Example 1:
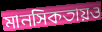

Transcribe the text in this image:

মানসিকতায়ও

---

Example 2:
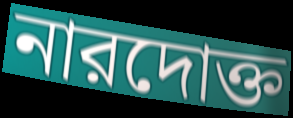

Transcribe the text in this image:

নারদোক্ত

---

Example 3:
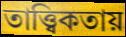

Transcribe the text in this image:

তাত্ত্বিকতায়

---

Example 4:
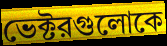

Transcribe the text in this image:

ভেক্টরগুলোকে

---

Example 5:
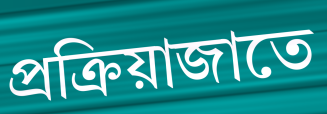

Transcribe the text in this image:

প্রক্রিয়াজাতে